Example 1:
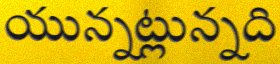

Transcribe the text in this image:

యున్నట్లున్నది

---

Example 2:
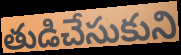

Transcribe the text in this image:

తుడిచేసుకుని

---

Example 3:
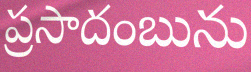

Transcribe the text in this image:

ప్రసాదంబును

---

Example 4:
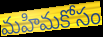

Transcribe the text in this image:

మహిమకోసం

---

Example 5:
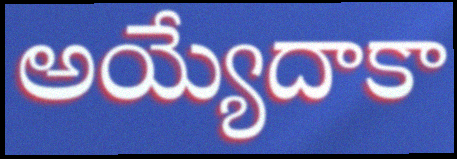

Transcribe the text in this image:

అయ్యేదాకా